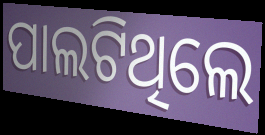
ପାଲଟିଥିଲେ